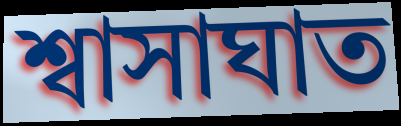
শ্বাসাঘাত